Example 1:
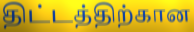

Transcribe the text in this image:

திட்டத்திற்கான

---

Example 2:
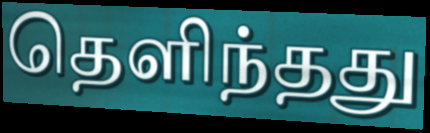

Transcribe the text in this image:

தெளிந்தது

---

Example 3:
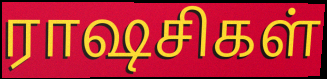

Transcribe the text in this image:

ராஷசிகள்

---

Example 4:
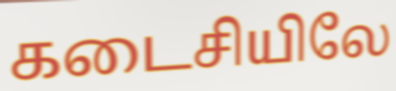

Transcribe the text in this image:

கடைசியிலே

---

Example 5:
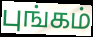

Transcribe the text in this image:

புங்கம்